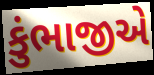
કુંભાજીએ